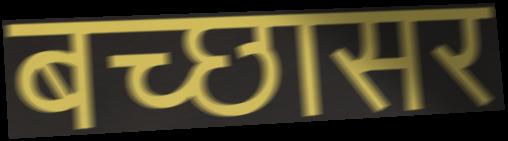
बच्छासर